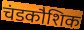
चंडकौशिक